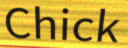
Chick